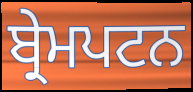
ਬ੍ਰੇਮਪਟਨ